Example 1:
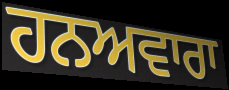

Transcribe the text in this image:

ਹਨਅਵਾਰਾ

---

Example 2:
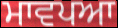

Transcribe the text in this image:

ਮਾਵਪਆ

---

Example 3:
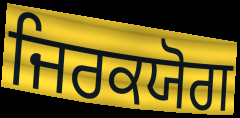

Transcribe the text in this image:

ਜਿਰਕਯੋਗ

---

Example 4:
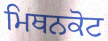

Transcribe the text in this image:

ਮਿਥਨਕੋਟ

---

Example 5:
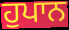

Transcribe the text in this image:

ਹੁਪਾਨ